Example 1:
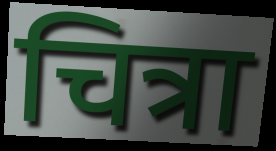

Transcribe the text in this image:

चित्रा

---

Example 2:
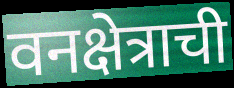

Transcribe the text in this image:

वनक्षेत्राची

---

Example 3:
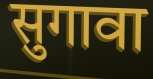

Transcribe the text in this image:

सुगावा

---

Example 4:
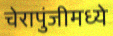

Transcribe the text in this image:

चेरापुंजीमध्ये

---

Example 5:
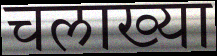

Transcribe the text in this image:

चलाख्या